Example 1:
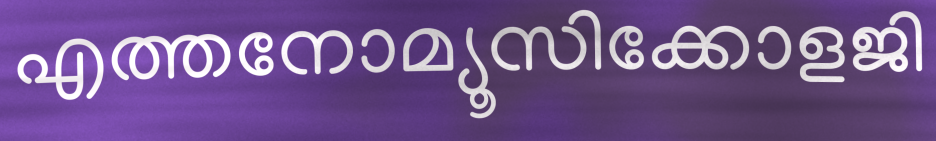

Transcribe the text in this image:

എത്തനോമ്യൂസിക്കോളജി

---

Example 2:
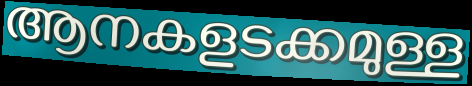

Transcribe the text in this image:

ആനകളടക്കമുള്ള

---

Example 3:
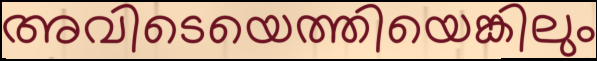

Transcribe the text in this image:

അവിടെയെത്തിയെങ്കിലും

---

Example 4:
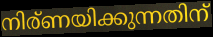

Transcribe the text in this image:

നിര്ണയിക്കുന്നതിന്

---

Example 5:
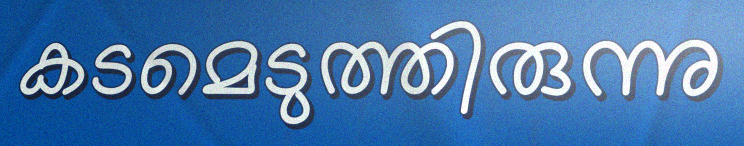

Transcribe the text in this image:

കടമെടുത്തിരുന്നു